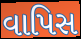
વાપિસ